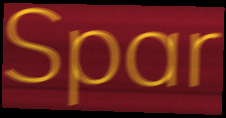
Spar